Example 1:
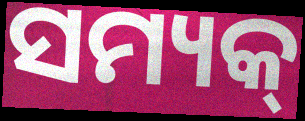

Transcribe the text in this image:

ସମ୍ୟକ୍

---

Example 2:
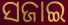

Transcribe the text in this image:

ସଜାଇ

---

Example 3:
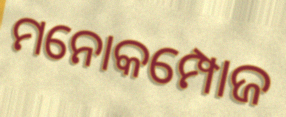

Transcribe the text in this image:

ମନୋକମ୍ପୋଜ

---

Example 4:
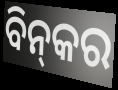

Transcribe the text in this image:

ବିନ୍‌କର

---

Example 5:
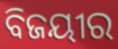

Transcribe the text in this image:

ବିଜୟୀର